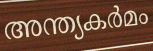
അന്ത്യകർമം